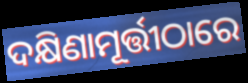
ଦକ୍ଷିଣାମୂର୍ତ୍ତୀଠାରେ